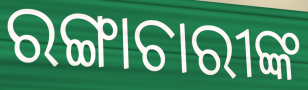
ରଙ୍ଗାଚାରୀଙ୍କ